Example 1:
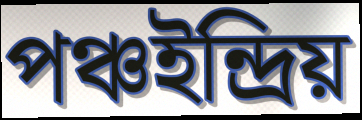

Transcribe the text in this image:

পঞ্চইন্দ্রিয়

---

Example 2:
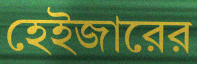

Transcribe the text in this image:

হেইজারের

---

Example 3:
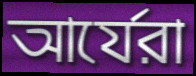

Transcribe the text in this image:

আর্যেরা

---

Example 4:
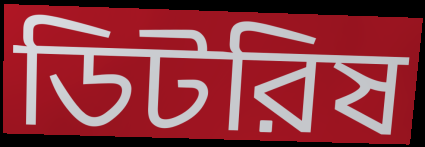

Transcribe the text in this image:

ডিটরিষ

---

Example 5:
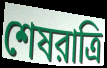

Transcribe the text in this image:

শেষরাত্রি